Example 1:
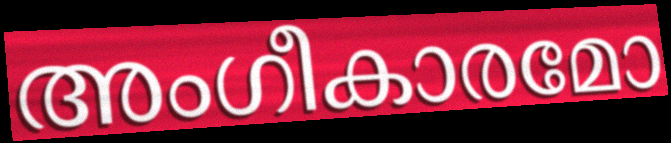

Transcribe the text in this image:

അംഗീകാരമോ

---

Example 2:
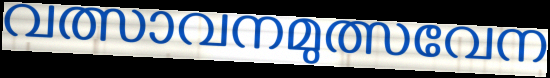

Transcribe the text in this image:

വത്സാവനമുത്സവേന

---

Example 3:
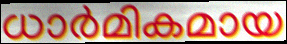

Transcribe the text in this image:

ധാർമികമായ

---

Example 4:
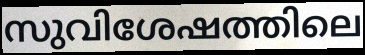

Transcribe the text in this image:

സുവിശേഷത്തിലെ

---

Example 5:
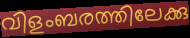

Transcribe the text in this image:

വിളംബരത്തിലേക്കു